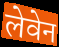
लेवेन